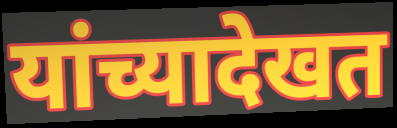
यांच्यादेखत